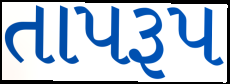
તાપરૂપ